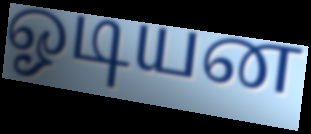
ஓடியன